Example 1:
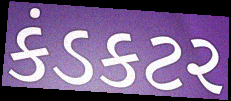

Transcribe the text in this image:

કંડકટર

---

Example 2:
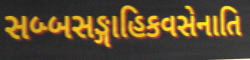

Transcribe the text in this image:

સબ્બસઙ્ગાહિકવસેનાતિ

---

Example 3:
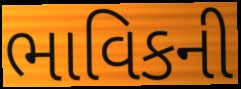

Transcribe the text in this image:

ભાવિકની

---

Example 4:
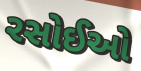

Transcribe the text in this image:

રસોઈઓ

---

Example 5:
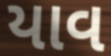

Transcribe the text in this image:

યાવ